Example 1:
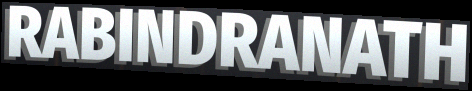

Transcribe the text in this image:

RABINDRANATH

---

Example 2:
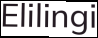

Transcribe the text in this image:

Elilingi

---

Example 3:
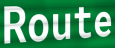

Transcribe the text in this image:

Route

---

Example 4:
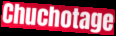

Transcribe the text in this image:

Chuchotage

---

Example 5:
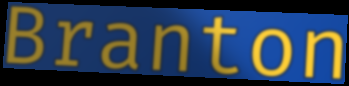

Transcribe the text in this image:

Branton